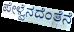
ಪೇಳ್ವೆನದೆಂತೆನೆ